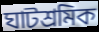
ঘাটশ্রমিক